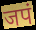
जपं